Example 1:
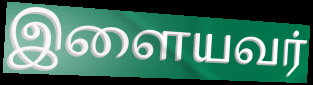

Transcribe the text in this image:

இளையவர்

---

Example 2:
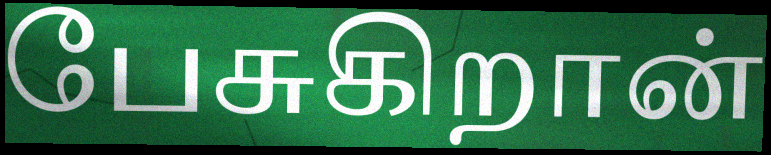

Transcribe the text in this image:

பேசுகிறான்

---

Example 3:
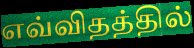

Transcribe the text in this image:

எவ்விதத்தில்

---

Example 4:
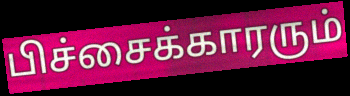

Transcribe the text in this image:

பிச்சைக்காரரும்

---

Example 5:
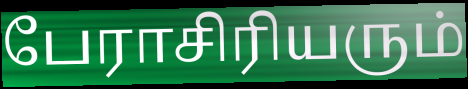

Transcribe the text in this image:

பேராசிரியரும்